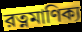
রত্নমাণিক্য